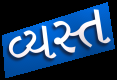
વ્યસ્ત